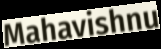
Mahavishnu